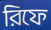
রিফে